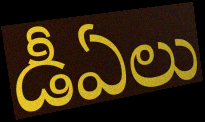
డీఏలు